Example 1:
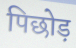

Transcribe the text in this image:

पिछोड़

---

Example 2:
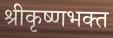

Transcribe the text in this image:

श्रीकृष्णभक्त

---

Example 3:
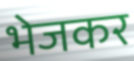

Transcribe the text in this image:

भेजकर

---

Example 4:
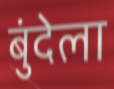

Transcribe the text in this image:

बुंदेला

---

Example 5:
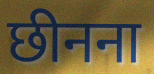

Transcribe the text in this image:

छीनना